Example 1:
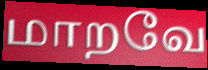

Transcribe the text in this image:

மாறவே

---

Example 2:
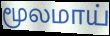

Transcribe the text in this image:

மூலமாய்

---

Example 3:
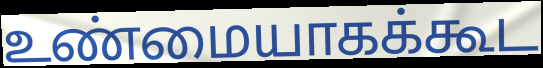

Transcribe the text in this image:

உண்மையாகக்கூட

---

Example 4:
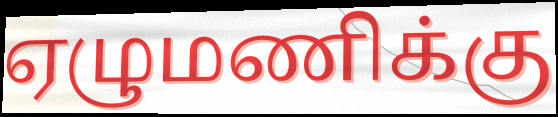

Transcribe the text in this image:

ஏழுமணிக்கு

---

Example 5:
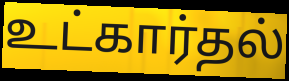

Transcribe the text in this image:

உட்கார்தல்